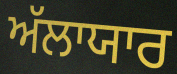
ਅੱਲਾਯਾਰ